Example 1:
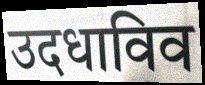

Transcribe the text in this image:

उदधाविव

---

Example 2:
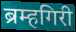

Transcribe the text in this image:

ब्रम्हगिरी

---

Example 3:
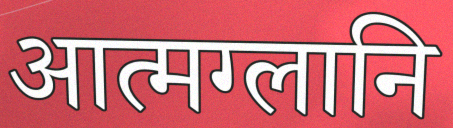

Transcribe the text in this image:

आत्मग्लानि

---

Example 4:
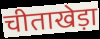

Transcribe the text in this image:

चीताखेड़ा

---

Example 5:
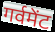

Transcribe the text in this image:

गर्वमेंट